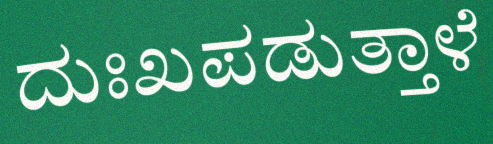
ದುಃಖಪಡುತ್ತಾಳೆ